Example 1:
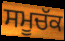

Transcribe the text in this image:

ਸਮੂਚੱਕ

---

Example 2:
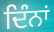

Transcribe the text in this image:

ਦਿੰਨਾਂ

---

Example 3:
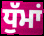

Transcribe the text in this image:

ਧੁੱਮਾਂ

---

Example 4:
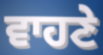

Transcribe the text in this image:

ਵਾਹਣੇ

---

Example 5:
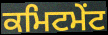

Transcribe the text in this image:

ਕਮਿਟਮੇਂਟ